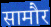
सामौर